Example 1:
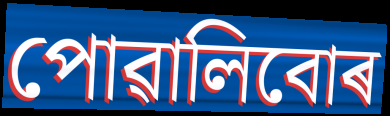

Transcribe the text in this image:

পোৱালিবোৰ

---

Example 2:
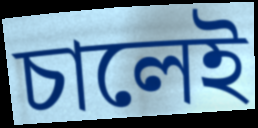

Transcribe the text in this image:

চালেই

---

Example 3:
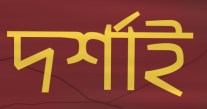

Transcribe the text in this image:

দৰ্শাই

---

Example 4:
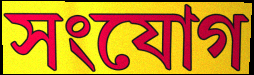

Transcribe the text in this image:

সংযোগ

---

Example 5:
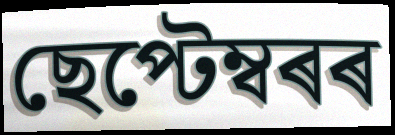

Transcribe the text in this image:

ছেপ্টেম্বৰৰ